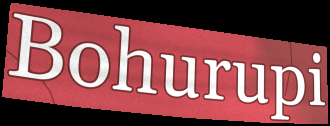
Bohurupi